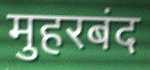
मुहरबंद